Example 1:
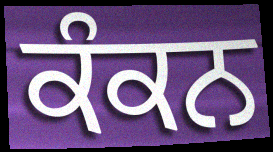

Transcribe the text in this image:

ਕੰਕਨ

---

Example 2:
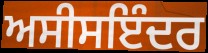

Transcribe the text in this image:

ਅਸੀਸਇੰਦਰ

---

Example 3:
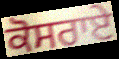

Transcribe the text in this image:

ਕੋਸਰਾਏ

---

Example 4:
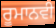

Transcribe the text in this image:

ਰੂਮਾਨਵੀ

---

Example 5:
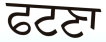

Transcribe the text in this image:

ਫਟਣਾ